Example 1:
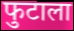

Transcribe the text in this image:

फुटाला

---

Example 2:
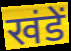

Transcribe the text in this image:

खंडें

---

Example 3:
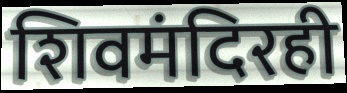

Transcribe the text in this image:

शिवमंदिरही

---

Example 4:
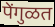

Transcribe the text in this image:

पेंगुळत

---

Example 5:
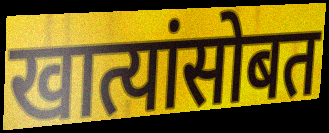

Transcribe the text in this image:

खात्यांसोबत